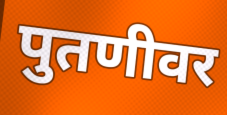
पुतणीवर